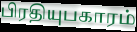
பிரதியுபகாரம்